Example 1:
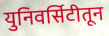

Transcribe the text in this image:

युनिवर्सिटीतून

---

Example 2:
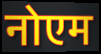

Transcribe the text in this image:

नोएम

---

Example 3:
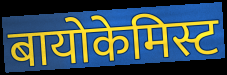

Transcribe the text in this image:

बायोकेमिस्ट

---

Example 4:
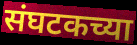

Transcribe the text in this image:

संघटकच्या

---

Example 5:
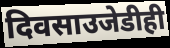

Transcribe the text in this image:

दिवसाउजेडीही